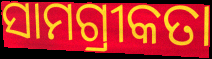
ସାମଗ୍ରୀକତା